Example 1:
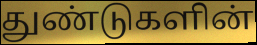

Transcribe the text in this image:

துண்டுகளின்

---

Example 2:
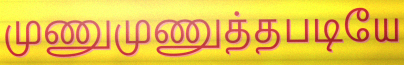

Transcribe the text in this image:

முணுமுணுத்தபடியே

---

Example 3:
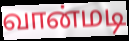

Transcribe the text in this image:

வான்மடி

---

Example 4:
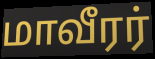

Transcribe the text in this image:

மாவீரர்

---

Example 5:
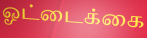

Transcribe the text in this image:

ஓட்டைக்கை